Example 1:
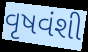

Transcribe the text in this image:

વૃષવંશી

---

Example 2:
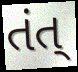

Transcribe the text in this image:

તંત્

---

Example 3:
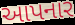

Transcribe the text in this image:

આપનાર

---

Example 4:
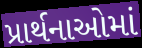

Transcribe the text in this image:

પ્રાર્થનાઓમાં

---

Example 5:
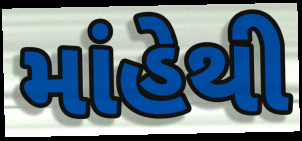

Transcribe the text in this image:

માંહેથી